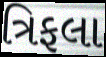
ત્રિફલા